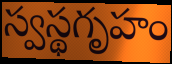
స్వస్థగృహం